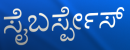
ಸೈಬರ್ಸ್ಪೇಸ್